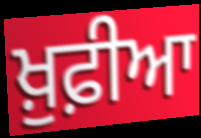
ਖ਼ੁਫ਼ੀਆ